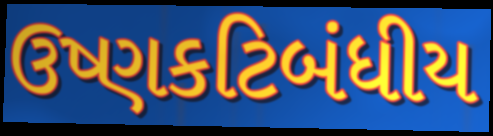
ઉષ્ણકટિબંધીય